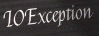
IOException